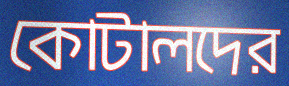
কোটালদের